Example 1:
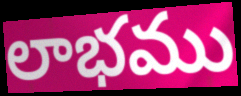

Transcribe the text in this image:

లాభము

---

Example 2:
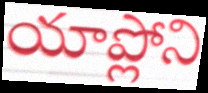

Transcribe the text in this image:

యాప్లోని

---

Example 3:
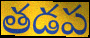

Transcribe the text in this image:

తడప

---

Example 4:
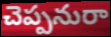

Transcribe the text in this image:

చెప్పనురా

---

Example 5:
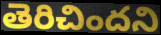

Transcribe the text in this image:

తెరిచిందని